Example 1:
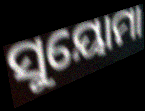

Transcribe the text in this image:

ସୁୟୋମା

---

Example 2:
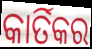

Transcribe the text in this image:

କାର୍ତିକର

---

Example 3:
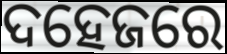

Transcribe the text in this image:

ଦହେଜରେ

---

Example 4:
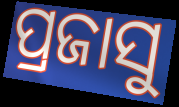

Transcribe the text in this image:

ପ୍ରଜାସୁ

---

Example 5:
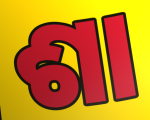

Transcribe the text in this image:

ଶା